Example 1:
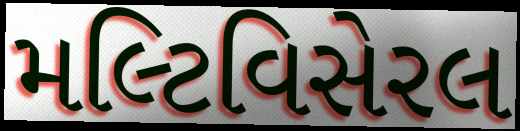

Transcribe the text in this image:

મલ્ટિવિસેરલ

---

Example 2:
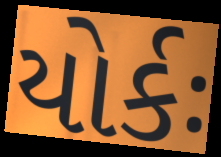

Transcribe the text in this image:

યોર્કઃ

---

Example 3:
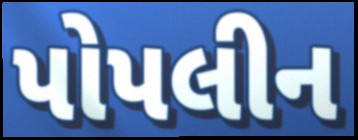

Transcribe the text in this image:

પોપલીન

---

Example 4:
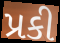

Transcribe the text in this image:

પ્રકી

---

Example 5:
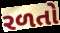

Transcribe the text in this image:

રળતો